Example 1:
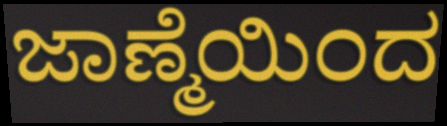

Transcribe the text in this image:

ಜಾಣ್ಮೆಯಿಂದ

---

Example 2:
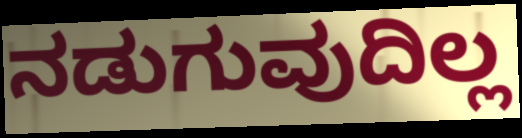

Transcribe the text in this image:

ನಡುಗುವುದಿಲ್ಲ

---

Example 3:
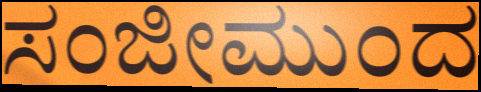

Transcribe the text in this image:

ಸಂಜೀಮುಂದ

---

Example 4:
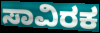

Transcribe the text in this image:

ಸಾವಿರಕ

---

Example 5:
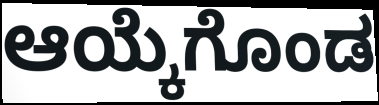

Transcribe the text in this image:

ಆಯ್ಕೆಗೊಂಡ